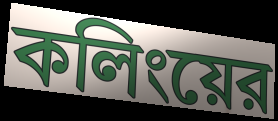
কলিংয়ের